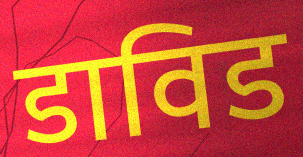
डाविड